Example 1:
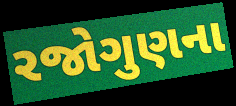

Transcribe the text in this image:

રજોગુણના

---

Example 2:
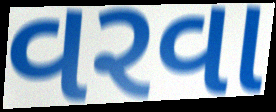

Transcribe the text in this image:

વરવા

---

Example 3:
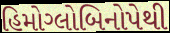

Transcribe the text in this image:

હિમોગ્લોબિનોપેથી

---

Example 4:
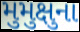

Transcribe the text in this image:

મુમુક્ષુના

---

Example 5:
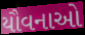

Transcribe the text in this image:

યૌવનાઓ